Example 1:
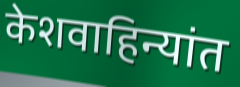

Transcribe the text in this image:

केशवाहिन्यांत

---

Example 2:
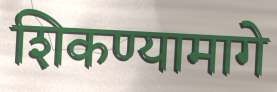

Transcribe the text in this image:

शिकण्यामागे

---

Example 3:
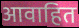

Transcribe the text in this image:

आवाहित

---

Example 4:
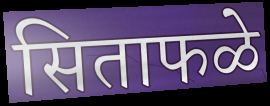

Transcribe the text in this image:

सिताफळे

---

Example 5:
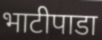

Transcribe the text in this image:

भाटीपाडा